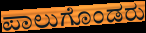
ಪಾಲುಗೊಂಡರು